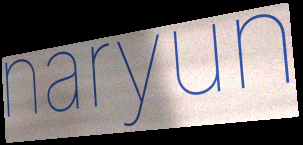
naryun